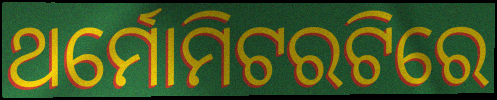
ଥର୍ମୋମିଟରଟିରେ